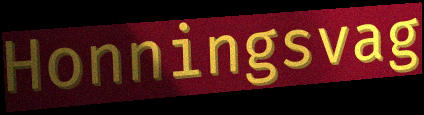
Honningsvag